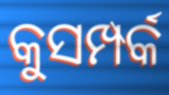
କୁସମ୍ପର୍କ